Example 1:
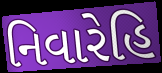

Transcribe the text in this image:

નિવારેહિ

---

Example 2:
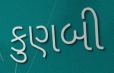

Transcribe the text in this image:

કુણબી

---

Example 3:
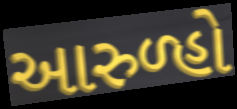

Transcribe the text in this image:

આરુળ્હો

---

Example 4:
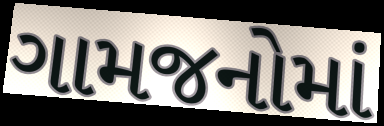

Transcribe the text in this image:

ગામજનોમાં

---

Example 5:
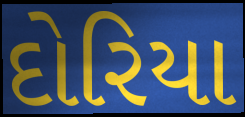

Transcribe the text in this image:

દોરિયા